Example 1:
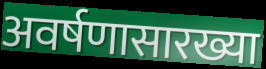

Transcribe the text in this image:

अवर्षणासारख्या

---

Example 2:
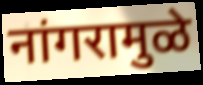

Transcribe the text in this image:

नांगरामुळे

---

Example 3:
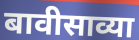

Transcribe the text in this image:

बावीसाव्या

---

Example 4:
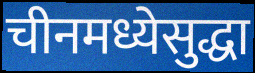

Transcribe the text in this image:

चीनमध्येसुद्धा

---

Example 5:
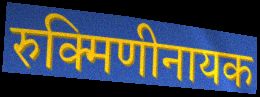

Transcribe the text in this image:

रुक्मिणीनायक